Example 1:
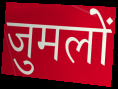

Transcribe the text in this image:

जुमलों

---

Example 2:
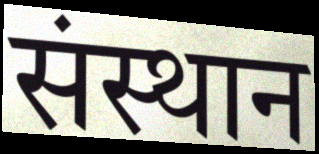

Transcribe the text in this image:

संस्‍थान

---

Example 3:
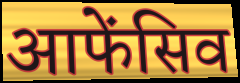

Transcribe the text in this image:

आफेंसिव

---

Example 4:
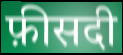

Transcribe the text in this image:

फ़ीसदी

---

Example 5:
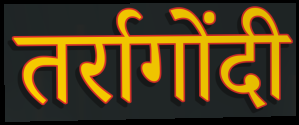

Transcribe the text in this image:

तर्रागोंदी